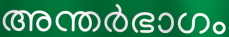
അന്തർഭാഗം